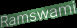
Ramswami